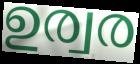
ഉര്വര